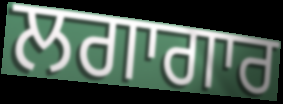
ਲਗਾਗਾਰ